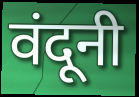
वंदूनी